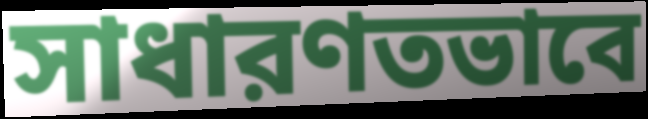
সাধারণতভাবে